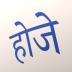
होजे